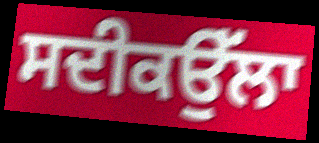
ਸਦੀਕਉੱਲਾ